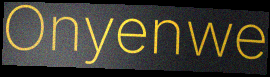
Onyenwe